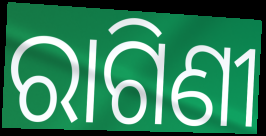
ରାଗିଣୀ